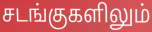
சடங்குகளிலும்